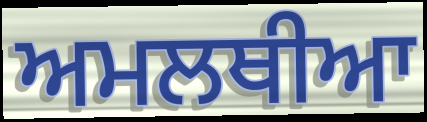
ਅਮਲਥੀਆ